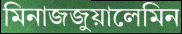
মিনাজজুয়ালেমিন